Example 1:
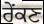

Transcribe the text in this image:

ਰੇੰਕਣ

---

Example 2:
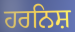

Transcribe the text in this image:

ਹਰਨਿਸ਼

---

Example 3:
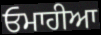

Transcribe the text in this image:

ਓਮਾਹੀਆ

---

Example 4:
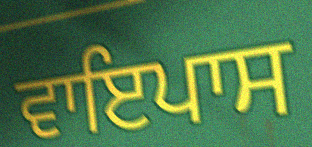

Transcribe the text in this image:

ਵਾਇਪਾਸ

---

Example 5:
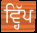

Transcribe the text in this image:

ਵ੍ਹਿੱਪ